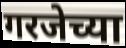
गरजेच्या